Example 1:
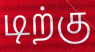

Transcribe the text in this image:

டிற்கு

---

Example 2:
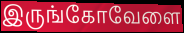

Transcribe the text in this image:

இருங்கோவேளை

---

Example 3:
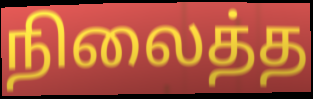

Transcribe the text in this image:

நிலைத்த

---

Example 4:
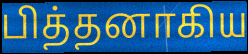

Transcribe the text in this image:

பித்தனாகிய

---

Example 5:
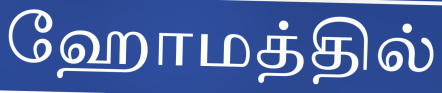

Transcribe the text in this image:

ஹோமத்தில்